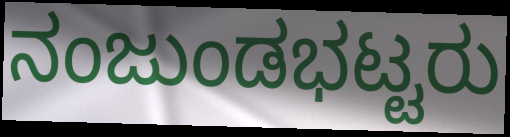
ನಂಜುಂಡಭಟ್ಟರು